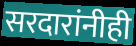
सरदारांनीही